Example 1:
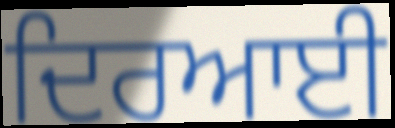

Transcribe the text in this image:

ਦਿਰਆਈ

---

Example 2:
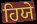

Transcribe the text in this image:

ਹਿਯੇ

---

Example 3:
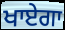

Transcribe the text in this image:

ਖਾਏਗਾ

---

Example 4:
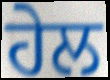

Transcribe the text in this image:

ਹੇਲ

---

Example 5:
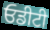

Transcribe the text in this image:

ਓਡੀਟੀ